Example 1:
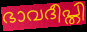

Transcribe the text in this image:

ഭാവദീപ്തി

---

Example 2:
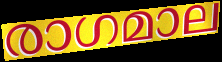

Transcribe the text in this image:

രാഗമാല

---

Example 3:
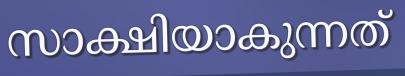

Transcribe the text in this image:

സാക്ഷിയാകുന്നത്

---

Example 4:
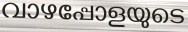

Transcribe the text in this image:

വാഴപ്പോളയുടെ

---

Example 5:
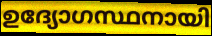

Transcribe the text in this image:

ഉദ്യോഗസ്ഥനായി